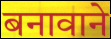
बनावाने